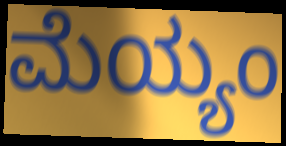
ಮೆಯ್ಯಂ